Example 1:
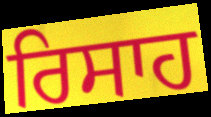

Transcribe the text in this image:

ਰਿਸਾਹ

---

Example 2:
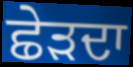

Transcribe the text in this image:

ਛੇੜਦਾ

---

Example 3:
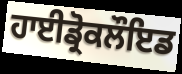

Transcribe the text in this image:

ਹਾਈਡ੍ਰੋਕਲੌਇਡ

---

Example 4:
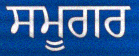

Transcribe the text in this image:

ਸਮੂਗਰ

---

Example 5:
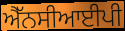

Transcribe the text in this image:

ਐੱਨਸੀਆਈਪੀ